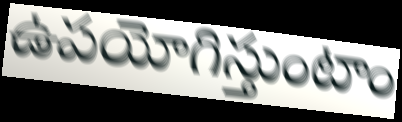
ఉపయోగిస్తుంటాం